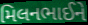
મિલનભાઈને